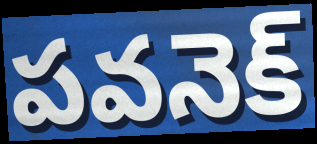
పవనెక్